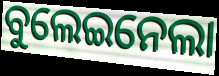
ବୁଲେଇନେଲା